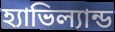
হ্যাভিল্যান্ড